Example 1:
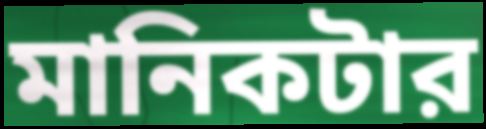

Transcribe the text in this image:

মানিকটার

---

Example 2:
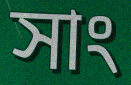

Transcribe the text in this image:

সাং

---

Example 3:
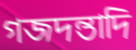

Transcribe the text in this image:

গজদন্তাদি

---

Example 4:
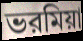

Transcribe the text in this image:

ভরমিয়া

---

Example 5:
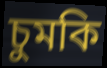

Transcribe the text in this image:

চুমকি